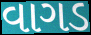
વાગડ